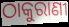
ଠାକୁରାଣୀ